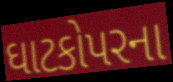
ઘાટકોપરના